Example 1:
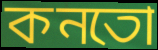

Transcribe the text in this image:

কনতো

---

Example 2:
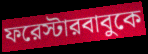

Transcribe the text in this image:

ফরেস্টারবাবুকে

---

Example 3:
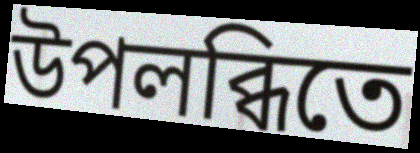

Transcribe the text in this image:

উপলব্ধিতে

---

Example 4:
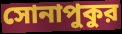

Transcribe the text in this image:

সোনাপুকুর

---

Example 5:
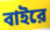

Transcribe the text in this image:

বাইরে